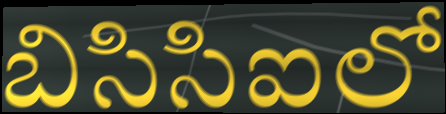
బిసిసిఐలో